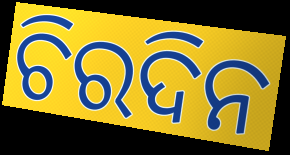
ଚିରଦିନ